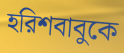
হরিশবাবুকে